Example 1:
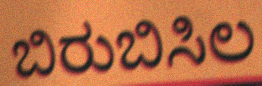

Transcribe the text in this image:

ಬಿರುಬಿಸಿಲ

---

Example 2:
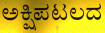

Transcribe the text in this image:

ಅಕ್ಷಿಪಟಲದ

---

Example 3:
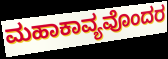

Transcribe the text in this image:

ಮಹಾಕಾವ್ಯವೊಂದರ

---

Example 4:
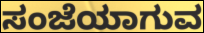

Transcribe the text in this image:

ಸಂಜೆಯಾಗುವ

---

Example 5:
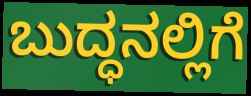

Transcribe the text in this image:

ಬುದ್ಧನಲ್ಲಿಗೆ